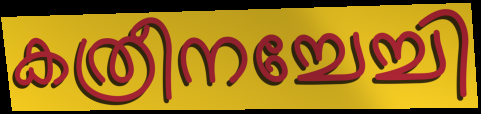
കത്രീനച്ചേച്ചി